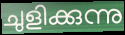
ചുളിക്കുന്നു